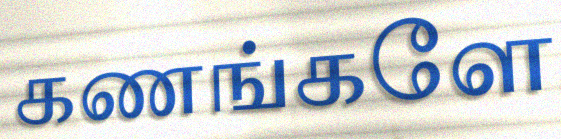
கணங்களே